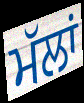
ਮੱਲਾਂ